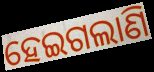
ହେଇଗଲାଣି